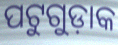
ପଟୁଗୁଡ଼ାକ